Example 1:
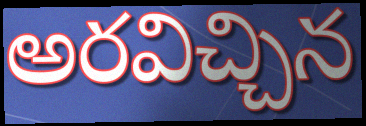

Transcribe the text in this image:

అరవిచ్చిన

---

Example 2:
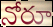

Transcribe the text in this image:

నోరూ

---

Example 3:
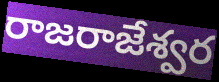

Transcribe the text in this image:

రాజరాజేశ్వర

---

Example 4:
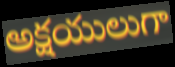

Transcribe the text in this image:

అక్షయులుగా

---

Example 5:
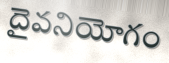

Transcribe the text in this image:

దైవనియోగం